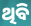
ଥିବି